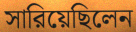
সারিয়েছিলেন